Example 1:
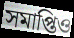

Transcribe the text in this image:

সমাপ্তিও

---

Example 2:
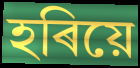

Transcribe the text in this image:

হৰিয়ে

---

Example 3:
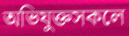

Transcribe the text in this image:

অভিযুক্তসকলে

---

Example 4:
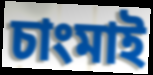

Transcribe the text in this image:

চাংমাই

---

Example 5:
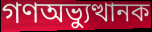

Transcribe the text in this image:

গণঅভ্যুত্থানক